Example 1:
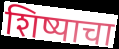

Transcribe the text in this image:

शिष्याचा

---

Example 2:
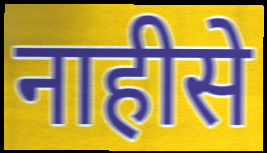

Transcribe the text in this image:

नाहीसे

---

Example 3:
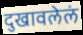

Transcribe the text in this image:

दुखावलेलं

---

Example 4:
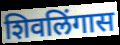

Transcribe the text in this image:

शिवलिंगास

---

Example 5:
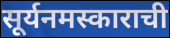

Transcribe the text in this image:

सूर्यनमस्काराची